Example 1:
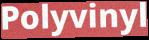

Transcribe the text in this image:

Polyvinyl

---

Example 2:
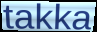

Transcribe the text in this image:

takka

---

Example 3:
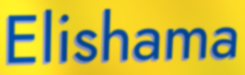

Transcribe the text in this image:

Elishama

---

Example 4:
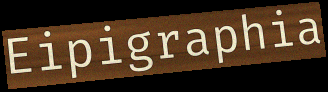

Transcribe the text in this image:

Eipigraphia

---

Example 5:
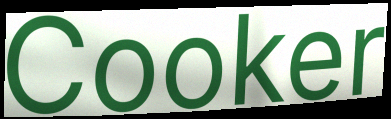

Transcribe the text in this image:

Cooker